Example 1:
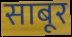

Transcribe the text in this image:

साबूर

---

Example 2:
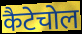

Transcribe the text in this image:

कैटेचोल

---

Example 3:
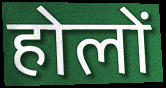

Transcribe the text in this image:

होलों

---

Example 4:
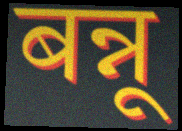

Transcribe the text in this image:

बन्नू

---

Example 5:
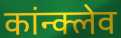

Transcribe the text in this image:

कांन्क्लेव